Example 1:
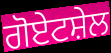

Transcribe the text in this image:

ਗੋਏਟਸ਼ੇਲ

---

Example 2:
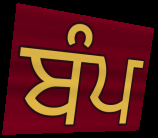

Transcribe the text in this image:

ਬੰਪ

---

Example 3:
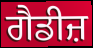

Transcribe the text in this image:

ਗੈਡੀਜ਼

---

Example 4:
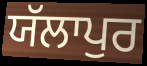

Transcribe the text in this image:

ਯੱਲਾਪੁਰ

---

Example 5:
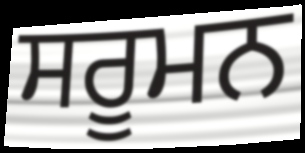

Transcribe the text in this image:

ਸਰੂਮਨ